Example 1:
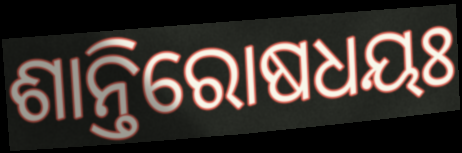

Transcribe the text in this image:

ଶାନ୍ତିରୋଷଧୟଃ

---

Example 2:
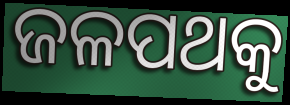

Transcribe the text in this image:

ଜଳପଥକୁ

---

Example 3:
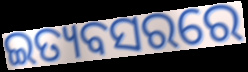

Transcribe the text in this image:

ଇତ୍ୟବସରରେ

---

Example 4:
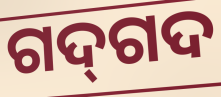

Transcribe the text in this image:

ଗଦ୍‍ଗଦ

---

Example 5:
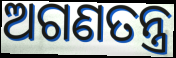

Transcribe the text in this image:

ଅଗଣତନ୍ତ୍ର